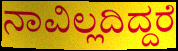
ನಾವಿಲ್ಲದಿದ್ದರೆ